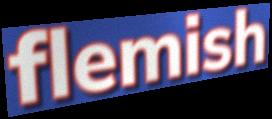
flemish